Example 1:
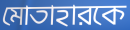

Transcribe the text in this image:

মোতাহারকে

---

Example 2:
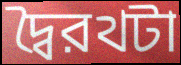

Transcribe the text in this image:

দ্বৈরথটা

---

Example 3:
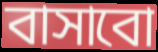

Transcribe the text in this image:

বাসাবো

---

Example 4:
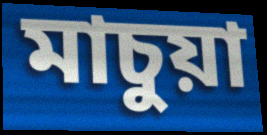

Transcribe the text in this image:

মাচুয়া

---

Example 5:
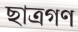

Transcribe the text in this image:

ছাত্রগণ